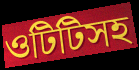
ওটিটিসহ